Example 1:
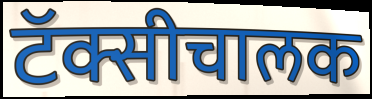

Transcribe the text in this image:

टॅक्सीचालक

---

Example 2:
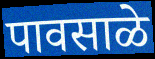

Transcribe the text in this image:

पावसाळे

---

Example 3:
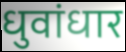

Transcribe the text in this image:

धुवांधार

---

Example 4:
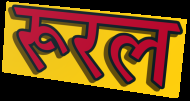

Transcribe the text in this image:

रूरल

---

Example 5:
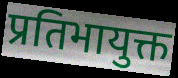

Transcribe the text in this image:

प्रतिभायुक्त